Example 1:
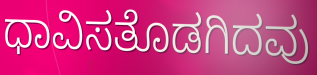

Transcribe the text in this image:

ಧಾವಿಸತೊಡಗಿದವು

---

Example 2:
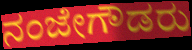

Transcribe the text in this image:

ನಂಜೇಗೌಡರು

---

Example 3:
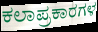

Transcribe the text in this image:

ಕಲಾಪ್ರಕಾರಗಳ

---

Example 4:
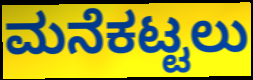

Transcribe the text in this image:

ಮನೆಕಟ್ಟಲು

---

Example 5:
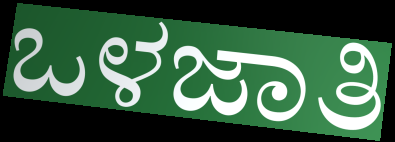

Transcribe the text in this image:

ಒಳಜಾತಿ